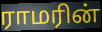
ராமரின்